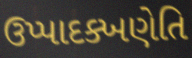
ઉપ્પાદક્ખણેતિ